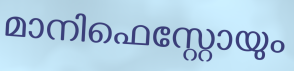
മാനിഫെസ്റ്റോയും